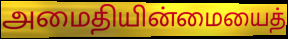
அமைதியின்மையைத்